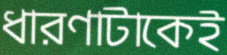
ধারণাটাকেই